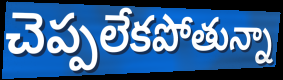
చెప్పలేకపోతున్నా